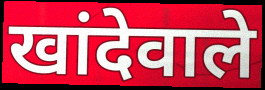
खांदेवाले